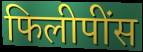
फिलीपींस